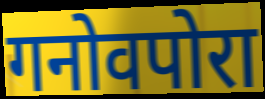
गनोवपोरा